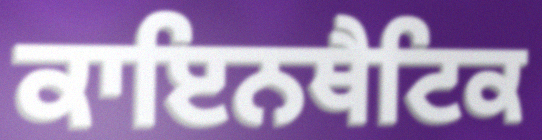
ਕਾਇਨਥੈਟਿਕ